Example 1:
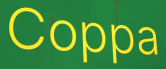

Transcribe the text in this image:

Coppa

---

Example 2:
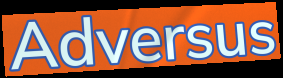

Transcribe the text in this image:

Adversus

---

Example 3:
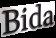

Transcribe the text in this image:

Bida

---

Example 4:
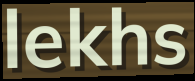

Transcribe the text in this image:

lekhs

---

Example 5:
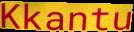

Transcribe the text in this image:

Kkantu